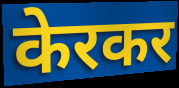
केरकर